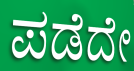
ಪಡೆದೇ